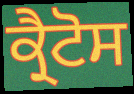
ਕ੍ਰੈਟੋਸ